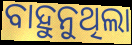
ବାହୁନୁଥିଲା